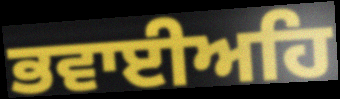
ਭਵਾਈਅਹਿ